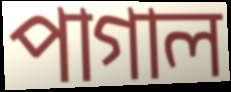
পাগাল